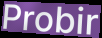
Probir